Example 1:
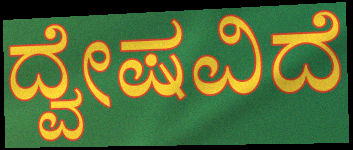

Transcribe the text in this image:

ದ್ವೇಷವಿದೆ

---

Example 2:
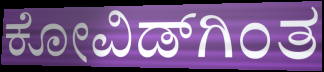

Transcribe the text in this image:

ಕೋವಿಡ್‌ಗಿಂತ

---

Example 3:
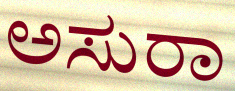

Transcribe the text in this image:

ಅಸುರಾ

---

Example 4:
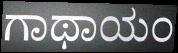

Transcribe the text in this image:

ಗಾಥಾಯಂ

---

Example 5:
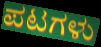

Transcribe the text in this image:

ಪಟಗಳು